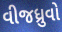
વીજધ્રુવો